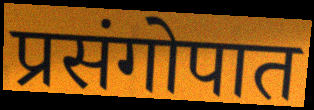
प्रसंगोपात